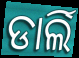
ଡାର୍ଲି